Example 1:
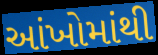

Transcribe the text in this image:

આંખોમાંથી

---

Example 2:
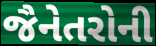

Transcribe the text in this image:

જૈનેતરોની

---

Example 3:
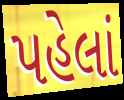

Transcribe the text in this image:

પહેલાં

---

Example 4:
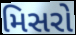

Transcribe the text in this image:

મિસરો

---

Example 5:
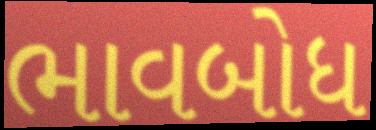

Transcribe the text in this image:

ભાવબોધ